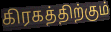
கிரகத்திற்கும்